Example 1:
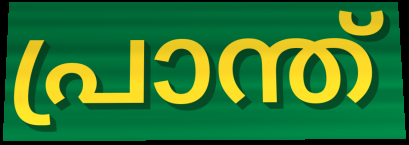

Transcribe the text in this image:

പ്രാന്ത്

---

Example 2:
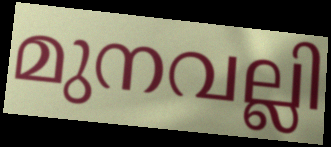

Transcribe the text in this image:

മുനവല്ലി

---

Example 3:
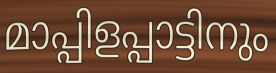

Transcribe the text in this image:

മാപ്പിളപ്പാട്ടിനും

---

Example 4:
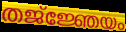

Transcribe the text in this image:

തജ്ജ്ഞേയം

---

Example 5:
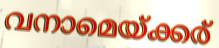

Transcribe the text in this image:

വനാമെയ്ക്കര്